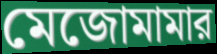
মেজোমামার